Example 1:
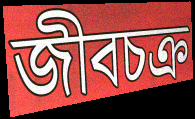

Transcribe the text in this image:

জীবচক্র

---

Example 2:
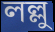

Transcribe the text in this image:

লল্লু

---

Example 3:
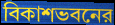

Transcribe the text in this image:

বিকাশভবনের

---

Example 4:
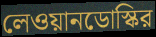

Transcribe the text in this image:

লেওয়ানডোস্কির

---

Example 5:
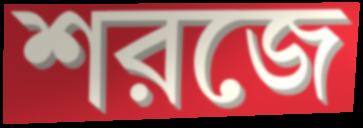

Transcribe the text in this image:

শরজে